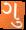
ગુ